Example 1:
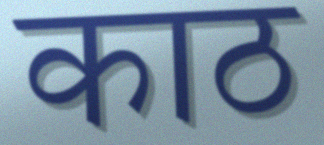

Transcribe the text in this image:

काठ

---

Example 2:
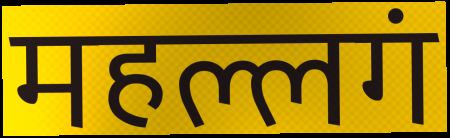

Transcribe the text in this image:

महल्लगं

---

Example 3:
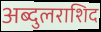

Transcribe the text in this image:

अब्दुलराशिद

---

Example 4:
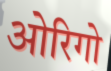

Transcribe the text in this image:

ओरिगो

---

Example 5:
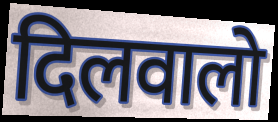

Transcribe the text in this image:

दिलवालो